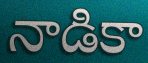
నాడికా